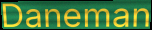
Daneman